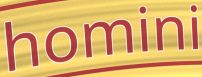
homini